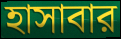
হাসাবার